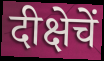
दीक्षेचें